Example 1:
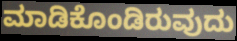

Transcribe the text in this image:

ಮಾಡಿಕೊಂಡಿರುವುದು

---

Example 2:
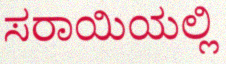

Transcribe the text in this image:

ಸರಾಯಿಯಲ್ಲಿ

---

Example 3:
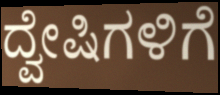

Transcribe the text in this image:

ದ್ವೇಷಿಗಳಿಗೆ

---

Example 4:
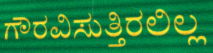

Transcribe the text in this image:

ಗೌರವಿಸುತ್ತಿರಲಿಲ್ಲ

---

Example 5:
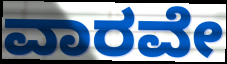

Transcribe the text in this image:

ವಾರವೇ